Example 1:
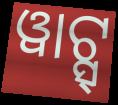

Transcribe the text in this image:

ୱାଟ୍ସ୍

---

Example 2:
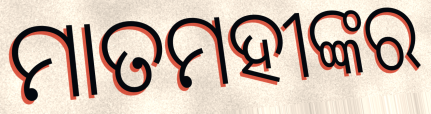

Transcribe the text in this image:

ମାତମହୀଙ୍କର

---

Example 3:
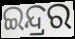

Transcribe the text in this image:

ଇନ୍ଦ୍ରର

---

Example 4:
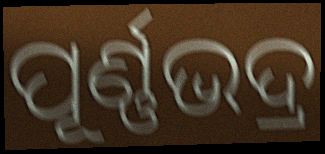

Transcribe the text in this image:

ପୂର୍ଣ୍ଣଭଦ୍ର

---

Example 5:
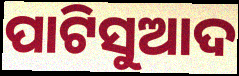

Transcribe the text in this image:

ପାଟିସୁଆଦ